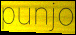
punjo